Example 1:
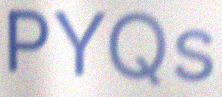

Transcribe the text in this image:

PYQs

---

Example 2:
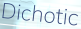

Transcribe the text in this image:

Dichotic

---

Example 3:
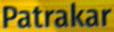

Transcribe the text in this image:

Patrakar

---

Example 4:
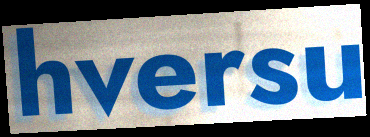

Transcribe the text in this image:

hversu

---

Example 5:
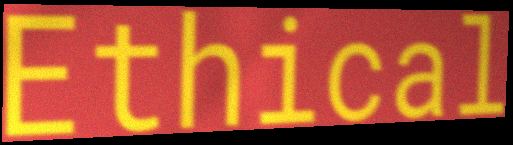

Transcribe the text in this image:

Ethical